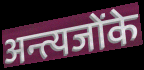
अन्त्यजोंके